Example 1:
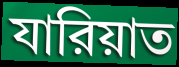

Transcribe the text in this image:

যারিয়াত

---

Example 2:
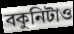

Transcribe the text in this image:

বকুনিটাও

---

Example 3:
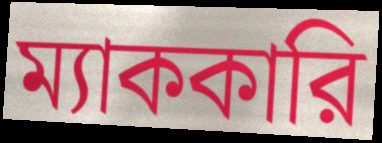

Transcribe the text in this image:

ম্যাককারি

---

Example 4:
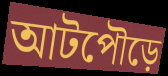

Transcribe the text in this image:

আটপৌড়ে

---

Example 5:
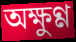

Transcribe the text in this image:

অক্ষুণ্ণ